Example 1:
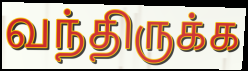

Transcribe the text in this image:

வந்திருக்க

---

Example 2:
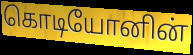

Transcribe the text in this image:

கொடியோனின்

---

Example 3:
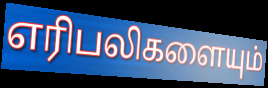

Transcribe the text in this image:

எரிபலிகளையும்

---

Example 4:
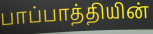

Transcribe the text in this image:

பாப்பாத்தியின்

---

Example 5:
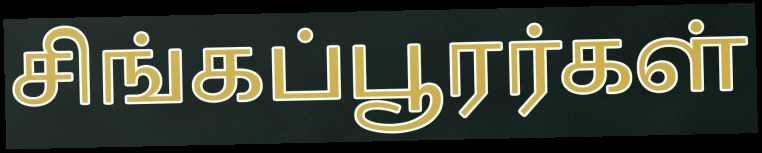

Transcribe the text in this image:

சிங்கப்பூரர்கள்